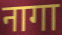
नागा